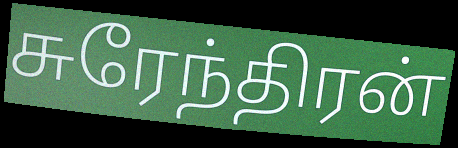
சுரேந்திரன்